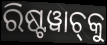
ରିଷ୍ଟୱାଚ୍‌କୁ